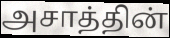
அசாத்தின்